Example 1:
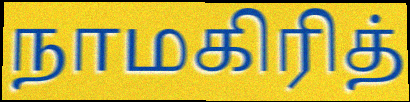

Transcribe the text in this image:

நாமகிரித்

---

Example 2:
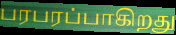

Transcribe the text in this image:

பரபரப்பாகிறது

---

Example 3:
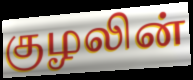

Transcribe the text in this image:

குழலின்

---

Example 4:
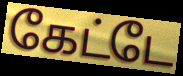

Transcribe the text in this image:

கேட்டே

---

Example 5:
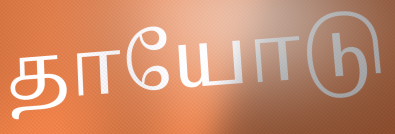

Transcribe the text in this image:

தாயோடு